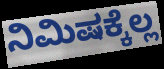
ನಿಮಿಷಕ್ಕೆಲ್ಲ